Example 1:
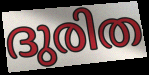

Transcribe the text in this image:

ദുരിത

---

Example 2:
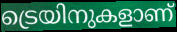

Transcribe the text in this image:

ട്രെയിനുകളാണ്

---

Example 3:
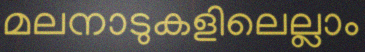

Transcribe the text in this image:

മലനാടുകളിലെല്ലാം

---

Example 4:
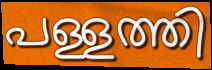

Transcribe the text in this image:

പള്ളത്തി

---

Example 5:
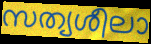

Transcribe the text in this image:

സത്യശീലാ